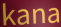
kana